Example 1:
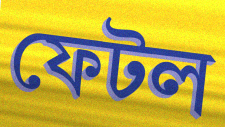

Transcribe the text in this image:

ফেটল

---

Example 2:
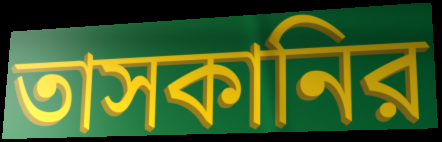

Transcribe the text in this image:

তাসকানির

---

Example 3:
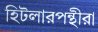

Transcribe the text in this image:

হিটলারপন্থীরা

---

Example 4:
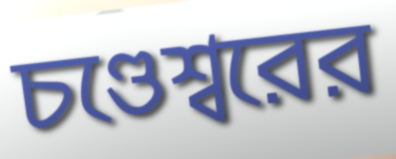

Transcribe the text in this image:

চণ্ডেশ্বরের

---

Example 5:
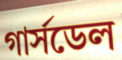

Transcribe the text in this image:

গার্সডেল